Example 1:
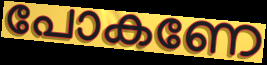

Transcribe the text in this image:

പോകണേ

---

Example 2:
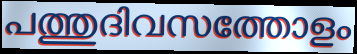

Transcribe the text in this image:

പത്തുദിവസത്തോളം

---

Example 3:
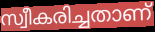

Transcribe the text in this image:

സ്വീകരിച്ചതാണ്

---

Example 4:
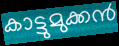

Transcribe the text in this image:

കാട്ടുമുക്കൻ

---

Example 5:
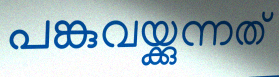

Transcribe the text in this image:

പങ്കുവയ്ക്കുന്നത്